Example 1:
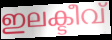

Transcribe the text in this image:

ഇലക്ടീവ്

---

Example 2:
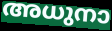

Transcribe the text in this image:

അധുനാ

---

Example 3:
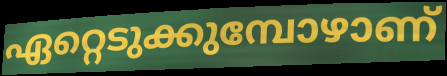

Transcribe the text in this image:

ഏറ്റെടുക്കുമ്പോഴാണ്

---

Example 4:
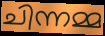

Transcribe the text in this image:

ചിന്നമ്മ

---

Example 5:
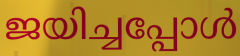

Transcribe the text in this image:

ജയിച്ചപ്പോൾ